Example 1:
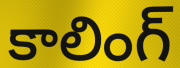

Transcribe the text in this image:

కాలింగ్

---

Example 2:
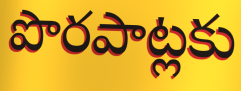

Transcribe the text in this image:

పొరపాట్లకు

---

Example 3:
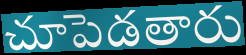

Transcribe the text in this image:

చూపెడతారు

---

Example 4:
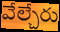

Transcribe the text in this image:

వేల్చేరు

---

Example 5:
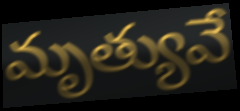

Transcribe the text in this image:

మృత్యువే